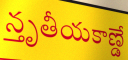
న్తృతీయకాణ్డే